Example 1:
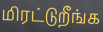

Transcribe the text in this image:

மிரட்டுறீங்க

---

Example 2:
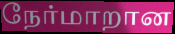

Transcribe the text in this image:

நேர்மாறான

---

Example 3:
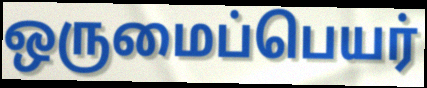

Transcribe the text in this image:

ஒருமைப்பெயர்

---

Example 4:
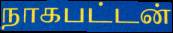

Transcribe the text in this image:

நாகபட்டன்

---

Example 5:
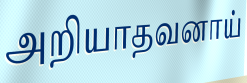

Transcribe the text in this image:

அறியாதவனாய்